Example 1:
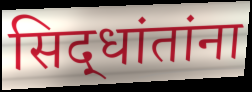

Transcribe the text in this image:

सिद्धांतांना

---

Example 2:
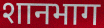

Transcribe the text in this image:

शानभाग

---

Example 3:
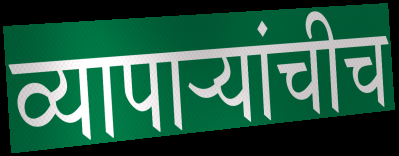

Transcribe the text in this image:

व्यापाऱ्यांचीच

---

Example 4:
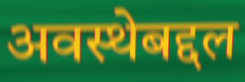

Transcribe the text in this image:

अवस्थेबद्दल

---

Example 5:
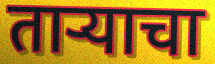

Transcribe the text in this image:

ताऱ्याचा